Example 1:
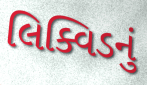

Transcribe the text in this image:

લિક્વિડનું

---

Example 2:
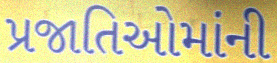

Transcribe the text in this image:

પ્રજાતિઓમાંની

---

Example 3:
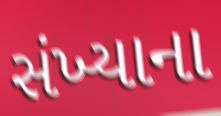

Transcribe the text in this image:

સંખ્યાના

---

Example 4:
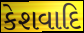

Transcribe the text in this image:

કેશવાદિ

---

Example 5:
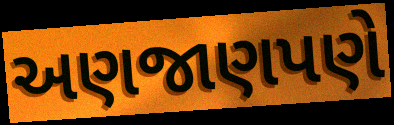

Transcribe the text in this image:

અણજાણપણે